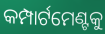
କମ୍ପାର୍ଟମେଣ୍ଟକୁ